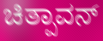
ಚಿತ್ಪಾವನ್